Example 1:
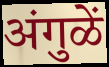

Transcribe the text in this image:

अंगुळें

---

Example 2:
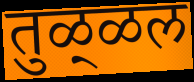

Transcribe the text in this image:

तुळ्‌ळल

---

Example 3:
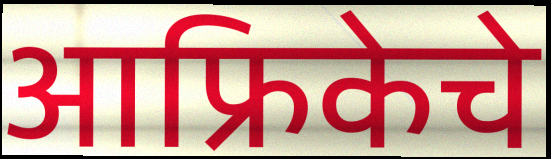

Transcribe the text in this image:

आफ्रिकेचे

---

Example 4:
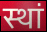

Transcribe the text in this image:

स्थां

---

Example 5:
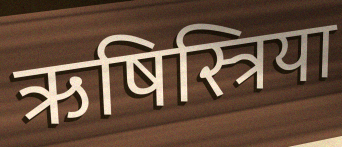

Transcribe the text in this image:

ऋषिस्त्रिया